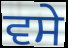
ਵਸੇ